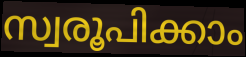
സ്വരൂപിക്കാം